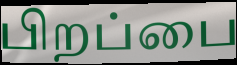
பிறப்பை